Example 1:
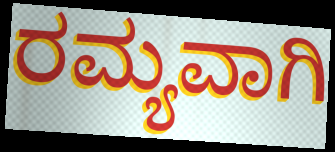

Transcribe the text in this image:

ರಮ್ಯವಾಗಿ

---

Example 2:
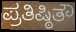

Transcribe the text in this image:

ಪ್ರತಿಷ್ಠಿತೌ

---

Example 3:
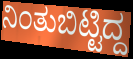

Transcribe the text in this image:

ನಿಂತುಬಿಟ್ಟಿದ್ದ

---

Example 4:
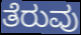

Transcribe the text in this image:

ತೆರುವು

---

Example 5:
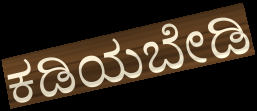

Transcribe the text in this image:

ಕಡಿಯಬೇಡಿ